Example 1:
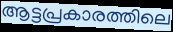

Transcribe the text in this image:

ആട്ടപ്രകാരത്തിലെ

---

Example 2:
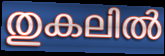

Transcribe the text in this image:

തുകലിൽ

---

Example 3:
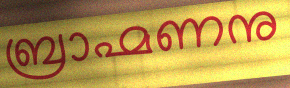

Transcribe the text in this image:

ബ്രാഹ്മണനു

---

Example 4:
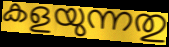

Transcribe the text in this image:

കളയുന്നതു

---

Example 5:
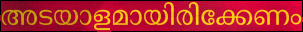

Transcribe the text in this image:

അടയാളമായിരിക്കേണം